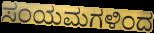
ಸಂಯಮಗಳಿಂದ